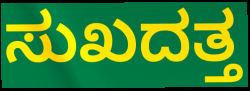
ಸುಖದತ್ತ